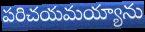
పరిచయమయ్యాను